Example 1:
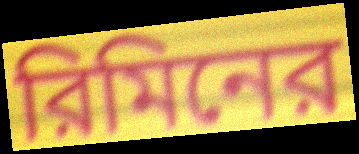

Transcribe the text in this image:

রিমিনের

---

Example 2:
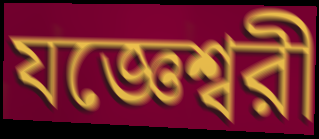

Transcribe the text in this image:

যজ্ঞেশ্বরী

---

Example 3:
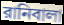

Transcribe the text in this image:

রানিবালা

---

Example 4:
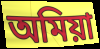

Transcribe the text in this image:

অমিয়া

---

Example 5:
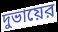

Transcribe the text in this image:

দুভায়ের